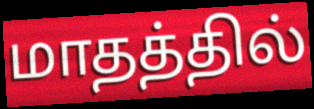
மாதத்தில்